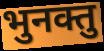
भुनक्तु